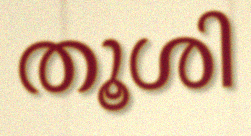
തൂശി